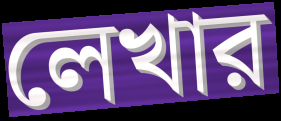
লেখার